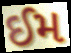
ઈમ